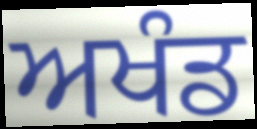
ਅਖੰਡ